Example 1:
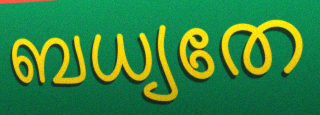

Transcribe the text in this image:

ബധ്യതേ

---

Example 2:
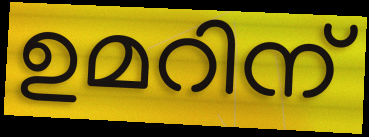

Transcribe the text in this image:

ഉമറിന്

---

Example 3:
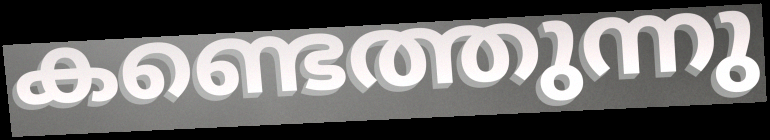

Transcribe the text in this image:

കണ്ടെത്തുന്നു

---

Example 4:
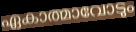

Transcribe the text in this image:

ഏകാത്മാവോടും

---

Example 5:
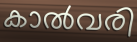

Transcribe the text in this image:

കാൽവരി